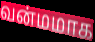
வன்மமாக